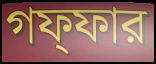
গফ্ফার